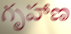
గృహాణ